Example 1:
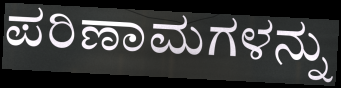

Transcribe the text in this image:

ಪರಿಣಾಮಗಳನ್ನು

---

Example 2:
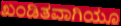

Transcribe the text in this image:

ಖಂಡಿತವಾಗಿಯೂ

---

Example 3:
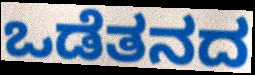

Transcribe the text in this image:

ಒಡೆತನದ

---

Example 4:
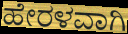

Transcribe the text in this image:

ಹೇರಳವಾಗಿ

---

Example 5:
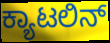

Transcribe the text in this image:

ಕ್ಯಾಟಲಿನ್